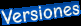
Versiones